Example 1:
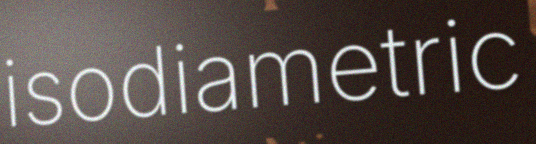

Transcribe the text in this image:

isodiametric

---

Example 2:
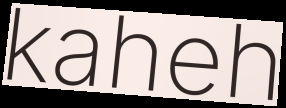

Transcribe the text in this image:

kaheh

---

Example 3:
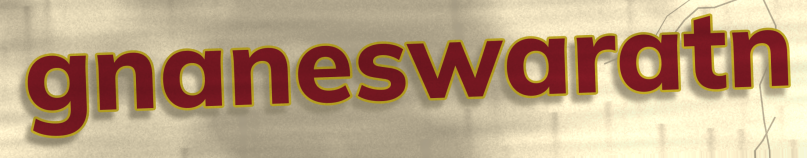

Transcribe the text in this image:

gnaneswaratn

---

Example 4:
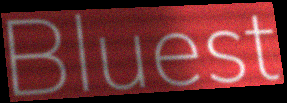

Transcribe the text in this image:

Bluest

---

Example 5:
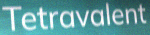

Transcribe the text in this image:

Tetravalent